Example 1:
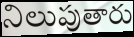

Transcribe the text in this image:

నిలుపుతారు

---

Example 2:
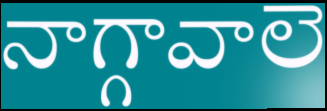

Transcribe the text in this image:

నాగ్గావాలె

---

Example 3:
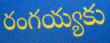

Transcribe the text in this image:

రంగయ్యకు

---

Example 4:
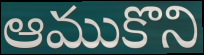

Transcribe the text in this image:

ఆముకొని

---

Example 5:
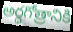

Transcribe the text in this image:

అర్ధగోత్రానికి